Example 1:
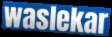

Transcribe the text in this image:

waslekar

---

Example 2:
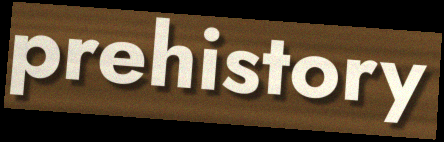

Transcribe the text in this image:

prehistory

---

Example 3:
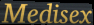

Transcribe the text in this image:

Medisex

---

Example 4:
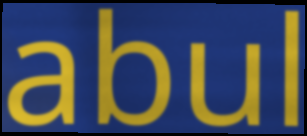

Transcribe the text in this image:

abul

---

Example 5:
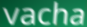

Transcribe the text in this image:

vacha